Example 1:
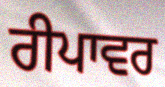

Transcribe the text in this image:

ਰੀਪਾਵਰ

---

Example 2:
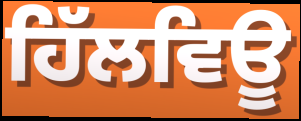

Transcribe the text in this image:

ਹਿੱਲਵਿਊ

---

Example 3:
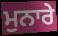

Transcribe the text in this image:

ਮੁਨਾਰੇ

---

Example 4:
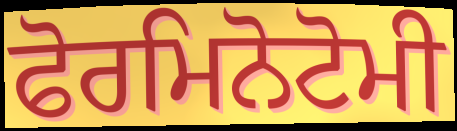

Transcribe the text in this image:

ਫੋਰਮਿਨੋਟੋਮੀ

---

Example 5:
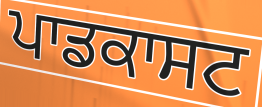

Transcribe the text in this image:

ਪਾਡਕਾਸਟ